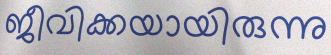
ജീവിക്കയായിരുന്നു